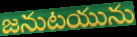
జనుటయును